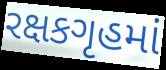
રક્ષકગૃહમાં